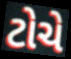
ટોચે